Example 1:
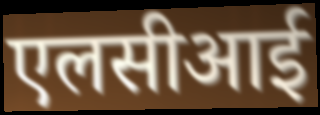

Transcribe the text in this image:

एलसीआई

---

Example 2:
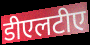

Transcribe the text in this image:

डीएलटीए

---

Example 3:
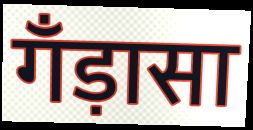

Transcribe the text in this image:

गँड़ासा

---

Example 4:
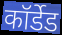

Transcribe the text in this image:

कॉर्डेड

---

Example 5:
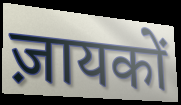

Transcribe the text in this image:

ज़ायकों